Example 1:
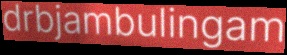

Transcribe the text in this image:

drbjambulingam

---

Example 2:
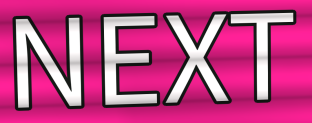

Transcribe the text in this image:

NEXT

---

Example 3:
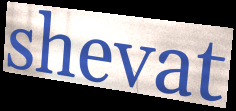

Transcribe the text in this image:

shevat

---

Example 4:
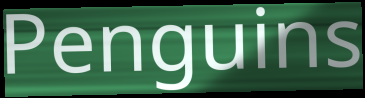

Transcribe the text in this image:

Penguins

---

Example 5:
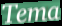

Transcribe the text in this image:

Tema